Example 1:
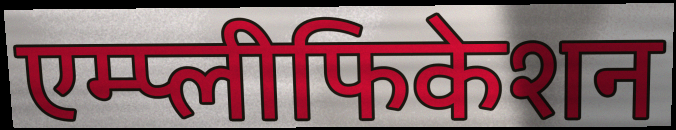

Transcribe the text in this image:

एम्प्लीफिकेशन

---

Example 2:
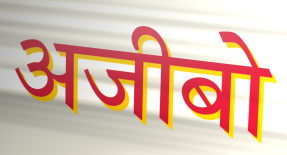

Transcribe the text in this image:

अजीबो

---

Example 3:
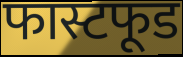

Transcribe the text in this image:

फास्टफूड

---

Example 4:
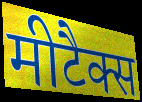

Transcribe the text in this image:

मीटैक्स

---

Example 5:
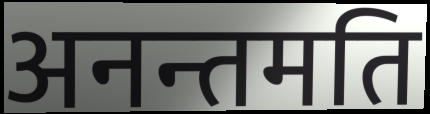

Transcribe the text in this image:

अनन्तमति